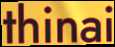
thinai